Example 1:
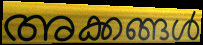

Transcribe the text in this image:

അക്കങ്ങൾ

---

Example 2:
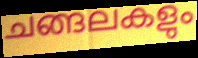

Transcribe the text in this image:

ചങ്ങലകളും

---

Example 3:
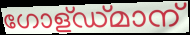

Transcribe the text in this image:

ഗോള്ഡ്മാന്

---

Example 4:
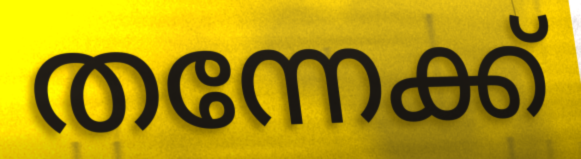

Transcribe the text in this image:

തന്നേക്ക്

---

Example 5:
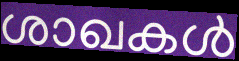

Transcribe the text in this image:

ശാഖകൾ